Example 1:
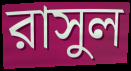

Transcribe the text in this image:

রাসুল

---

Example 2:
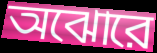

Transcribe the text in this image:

অঝোরে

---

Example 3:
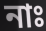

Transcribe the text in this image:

নাঃ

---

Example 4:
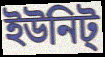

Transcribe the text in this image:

ইউনিট্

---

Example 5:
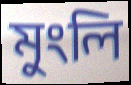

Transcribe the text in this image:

মুংলি